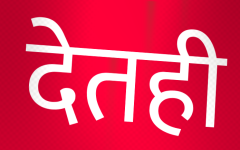
देतही